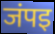
जंपइ